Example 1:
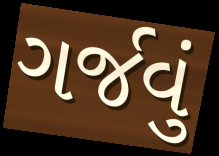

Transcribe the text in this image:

ગર્જવું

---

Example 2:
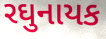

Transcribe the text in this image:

રઘુનાયક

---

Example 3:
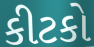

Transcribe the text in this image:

કીટકો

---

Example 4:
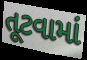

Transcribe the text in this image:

તૂટવામાં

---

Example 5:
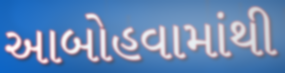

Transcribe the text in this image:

આબોહવામાંથી